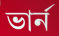
ভার্ন